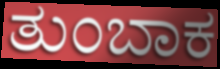
ತುಂಬಾಕ